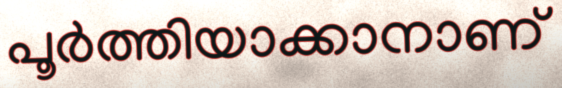
പൂർത്തിയാക്കാനാണ്